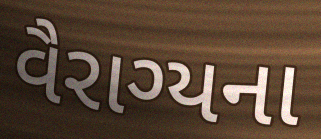
વૈરાગ્યના